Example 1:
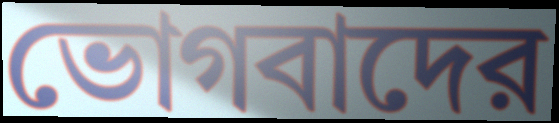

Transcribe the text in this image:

ভোগবাদের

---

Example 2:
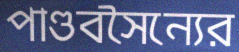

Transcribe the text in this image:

পাণ্ডবসৈন্যের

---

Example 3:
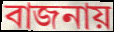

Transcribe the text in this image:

বাজনায়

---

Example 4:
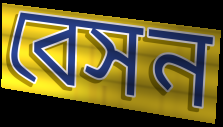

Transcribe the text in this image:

বেসন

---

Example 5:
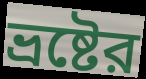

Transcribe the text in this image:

ভ্রষ্টের